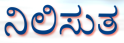
ನಿಲಿಸುತ